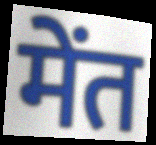
मेंत